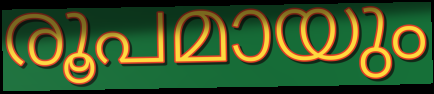
രൂപമായും